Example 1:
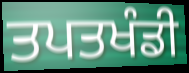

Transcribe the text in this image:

ਤਪਤਖੰਡੀ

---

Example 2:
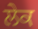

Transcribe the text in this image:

ਲੇਕ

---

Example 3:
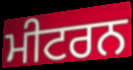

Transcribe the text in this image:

ਮੀਟਰਨ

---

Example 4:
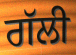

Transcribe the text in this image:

ਗੱਲੀ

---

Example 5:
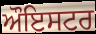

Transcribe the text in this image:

ਔਇਸਟਰ